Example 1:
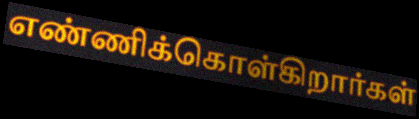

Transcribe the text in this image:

எண்ணிக்கொள்கிறார்கள்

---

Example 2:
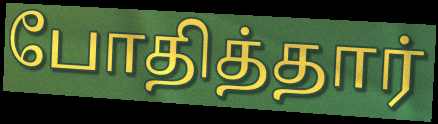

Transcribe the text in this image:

போதித்தார்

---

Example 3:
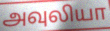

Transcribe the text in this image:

அவுலியா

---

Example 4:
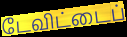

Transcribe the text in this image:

டேவிட்டைப்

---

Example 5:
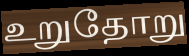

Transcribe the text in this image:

உறுதோறு